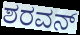
ಶರವನ್